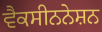
ਵੈਕਸੀਨਨੇਸ਼ਨ